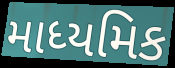
માધ્યમિક